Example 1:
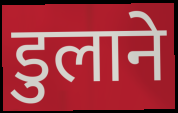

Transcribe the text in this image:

डुलाने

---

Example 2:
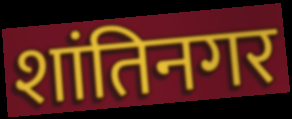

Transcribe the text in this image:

शांतिनगर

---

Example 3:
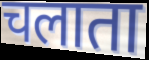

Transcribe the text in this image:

चलाता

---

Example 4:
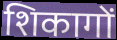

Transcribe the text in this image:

शिकागों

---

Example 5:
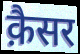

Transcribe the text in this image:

क़ैसर